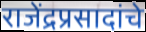
राजेंद्रप्रसादांचे